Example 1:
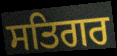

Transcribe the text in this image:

ਸਤਿਗਰ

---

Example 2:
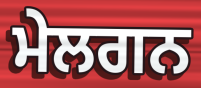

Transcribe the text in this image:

ਮੇਲਗਨ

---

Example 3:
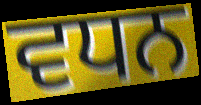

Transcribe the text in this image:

ਵਧਨ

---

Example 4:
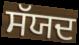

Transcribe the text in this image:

ਸੱਯਦ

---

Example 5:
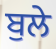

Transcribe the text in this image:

ਬੁਲੇ